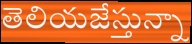
తెలియజేస్తున్నా